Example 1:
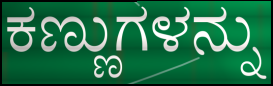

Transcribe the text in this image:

ಕಣ್ಣುಗಳನ್ನು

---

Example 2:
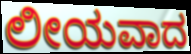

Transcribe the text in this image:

ಲೀಯವಾದ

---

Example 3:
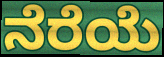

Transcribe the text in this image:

ನೆರೆಯೆ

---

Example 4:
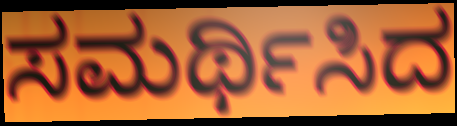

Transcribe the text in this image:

ಸಮರ್ಥಿಸಿದ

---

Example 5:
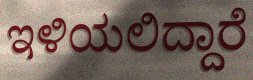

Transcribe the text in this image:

ಇಳಿಯಲಿದ್ದಾರೆ